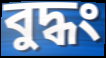
বুদ্ধং